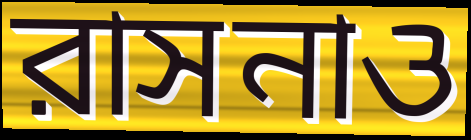
রাসনাও